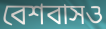
বেশবাসও